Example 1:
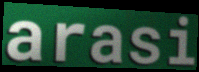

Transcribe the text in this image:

arasi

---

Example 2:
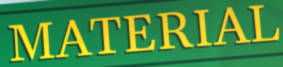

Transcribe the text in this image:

MATERIAL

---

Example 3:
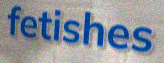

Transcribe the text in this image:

fetishes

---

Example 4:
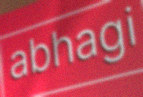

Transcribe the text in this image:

abhagi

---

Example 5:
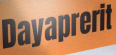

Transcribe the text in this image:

Dayaprerit